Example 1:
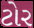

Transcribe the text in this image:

ટોર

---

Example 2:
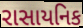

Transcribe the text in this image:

રાસાયનિક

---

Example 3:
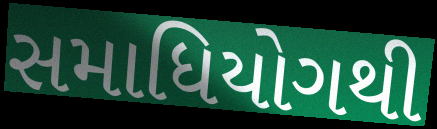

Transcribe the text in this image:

સમાધિયોગથી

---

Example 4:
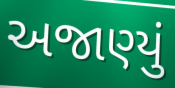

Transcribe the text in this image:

અજાણ્યું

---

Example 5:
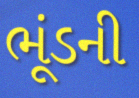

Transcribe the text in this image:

ભૂંડની